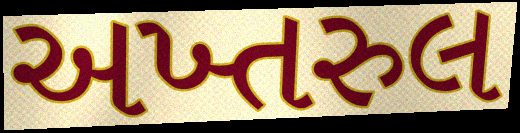
અખ્તરુલ